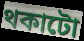
থকাটো